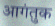
आगंतुक